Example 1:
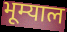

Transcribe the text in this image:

भूम्याल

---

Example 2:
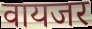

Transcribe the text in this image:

वायजर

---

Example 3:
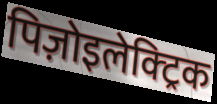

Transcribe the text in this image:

पिज़ोइलेक्ट्रिक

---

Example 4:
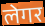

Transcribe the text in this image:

लेगर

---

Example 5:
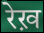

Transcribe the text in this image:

रेख़